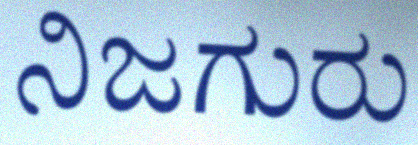
ನಿಜಗುರು